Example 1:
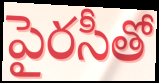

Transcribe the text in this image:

పైరసీతో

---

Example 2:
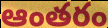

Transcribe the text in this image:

ఆంతరం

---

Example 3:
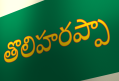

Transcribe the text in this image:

తొలిహరప్పా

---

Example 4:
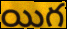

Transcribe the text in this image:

యిగ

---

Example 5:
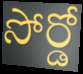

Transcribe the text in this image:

సోర్డో